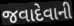
જવાદેવાની